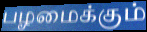
பழமைக்கும்